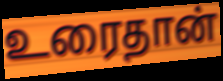
உரைதான்